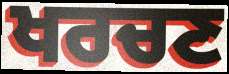
ਖਰਚਣ